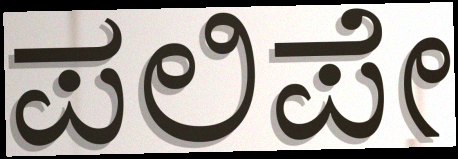
ಪಲಿಪೇ